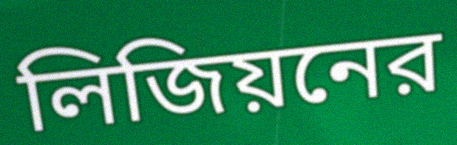
লিজিয়নের